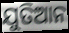
ଯୁତିଆନ